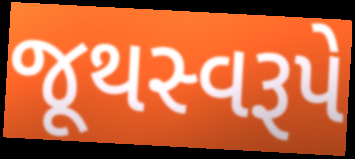
જૂથસ્વરૂપે